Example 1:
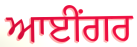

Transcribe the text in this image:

ਆਈਂਗਰ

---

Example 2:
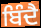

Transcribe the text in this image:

ਬਿੰਦੈ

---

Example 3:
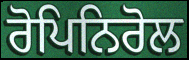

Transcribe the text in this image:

ਰੋਪਿਨਿਰੋਲ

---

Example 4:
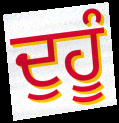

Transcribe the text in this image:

ਦੁਹੂੰ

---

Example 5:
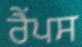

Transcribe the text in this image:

ਰੈਂਪਸ